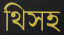
থিসহ